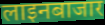
लाइनबाजार